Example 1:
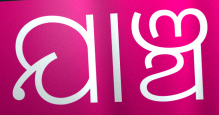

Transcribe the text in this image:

ଯାଞ୍ଚ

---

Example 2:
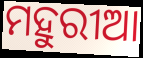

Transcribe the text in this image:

ମହୁରୀଆ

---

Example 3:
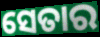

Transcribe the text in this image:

ସେତାର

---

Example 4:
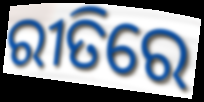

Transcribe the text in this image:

ରୀତିରେ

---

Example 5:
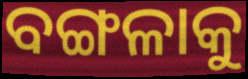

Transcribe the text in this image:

ବଙ୍ଗଳାକୁ